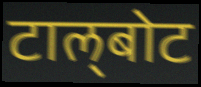
टाल्बोट